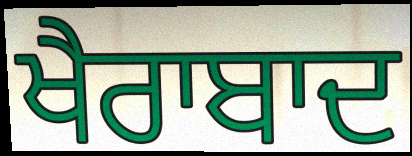
ਖੈਰਾਬਾਦ